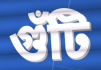
গুঁটি